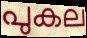
പുകല